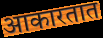
आकारतात